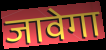
जावेगा